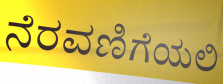
ನೆರವಣಿಗೆಯಲಿ